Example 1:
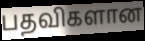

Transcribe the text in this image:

பதவிகளான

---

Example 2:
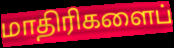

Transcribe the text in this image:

மாதிரிகளைப்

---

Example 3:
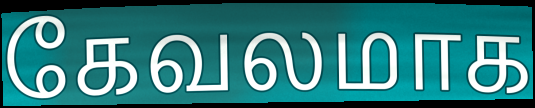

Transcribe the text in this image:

கேவலமாக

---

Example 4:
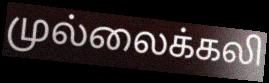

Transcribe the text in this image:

முல்லைக்கலி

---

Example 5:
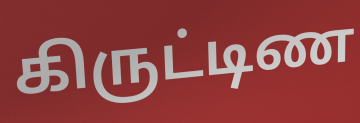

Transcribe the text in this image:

கிருட்டிண